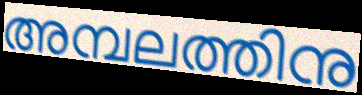
അമ്പലത്തിനു